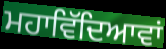
ਮਹਾਵਿੱਦਿਆਵਾਂ